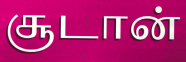
சூடான்